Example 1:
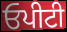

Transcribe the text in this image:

ਓਪੀਟੀ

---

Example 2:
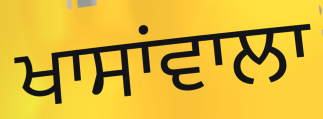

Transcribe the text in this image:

ਖਾਸਾਂਵਾਲਾ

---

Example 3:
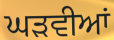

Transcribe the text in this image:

ਘੜਵੀਆਂ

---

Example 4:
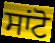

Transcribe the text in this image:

ਸਾਂਟੋ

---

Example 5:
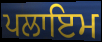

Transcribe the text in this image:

ਪਲਾਇਮ